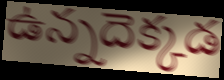
ఉన్నదెక్కడ